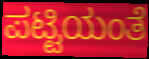
ಪಟ್ಟಿಯಂತೆ